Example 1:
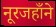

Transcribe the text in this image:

नूरजहाँने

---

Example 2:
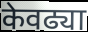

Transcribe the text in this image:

केवढ्या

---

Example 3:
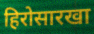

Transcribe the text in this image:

हिरोसारखा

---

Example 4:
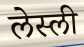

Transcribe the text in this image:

लेस्ली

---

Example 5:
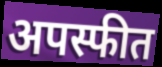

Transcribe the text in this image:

अपस्फीत